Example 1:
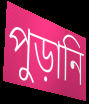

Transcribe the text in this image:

পুড়ানি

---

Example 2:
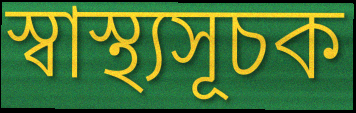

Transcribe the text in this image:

স্বাস্থ্যসূচক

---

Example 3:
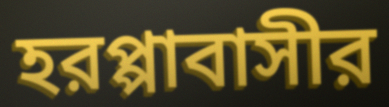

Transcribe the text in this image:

হরপ্পাবাসীর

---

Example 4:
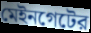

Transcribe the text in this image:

মেইনগেটের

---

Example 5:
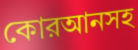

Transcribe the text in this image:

কোরআনসহ